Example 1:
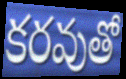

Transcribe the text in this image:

కరవుతో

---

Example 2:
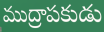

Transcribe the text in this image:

ముద్రాపకుడు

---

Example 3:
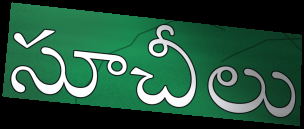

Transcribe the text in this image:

సూచీలు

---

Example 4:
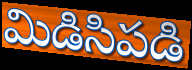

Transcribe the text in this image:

మిడిసిపడి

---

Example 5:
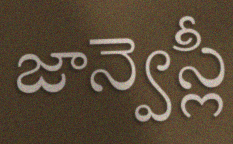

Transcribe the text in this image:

జాన్వెస్లీ